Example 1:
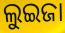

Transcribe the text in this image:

ଲୁଇଜା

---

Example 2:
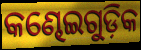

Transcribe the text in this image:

କଣ୍ଢେଇଗୁଡ଼ିକ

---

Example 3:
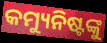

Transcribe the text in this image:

କମ୍ୟୁନିଷ୍ଟଙ୍କୁ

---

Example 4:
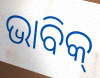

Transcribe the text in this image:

ଭାବିକ୍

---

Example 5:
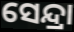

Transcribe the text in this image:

ସେନ୍ଦ୍ରା